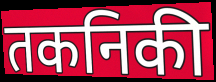
तकनिकी